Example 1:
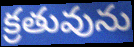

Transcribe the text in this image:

క్రతువును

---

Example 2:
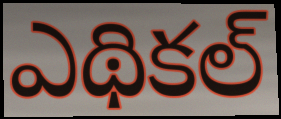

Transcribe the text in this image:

ఎథికల్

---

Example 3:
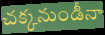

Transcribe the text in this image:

చక్కనుండీనా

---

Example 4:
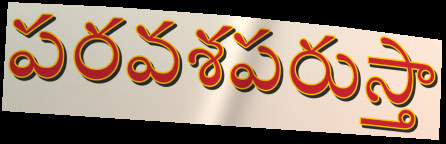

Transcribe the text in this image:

పరవశపరుస్తా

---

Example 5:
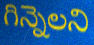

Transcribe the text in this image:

గిన్నెలని